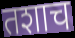
तशाच